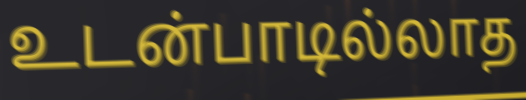
உடன்பாடில்லாத